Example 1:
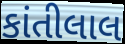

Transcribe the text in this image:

કાંતીલાલ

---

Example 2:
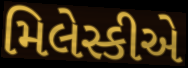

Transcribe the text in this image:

મિલેસ્કીએ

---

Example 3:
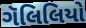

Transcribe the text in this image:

ગૅલિલિયો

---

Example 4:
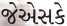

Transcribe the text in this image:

જેએસકે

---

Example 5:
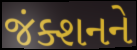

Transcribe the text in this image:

જંક્શનને